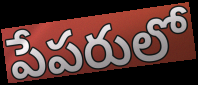
పేపరులో